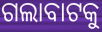
ଗଲାବାଟକୁ